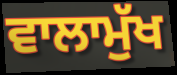
ਵਾਲਾਮੁੱਖ